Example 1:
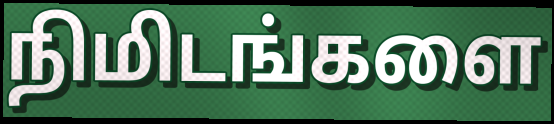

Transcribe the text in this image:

நிமிடங்களை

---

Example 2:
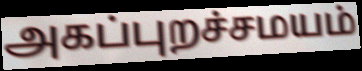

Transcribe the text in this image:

அகப்புறச்சமயம்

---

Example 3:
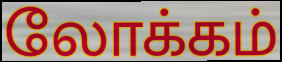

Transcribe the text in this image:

லோக்கம்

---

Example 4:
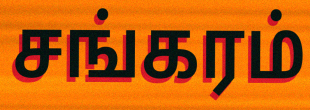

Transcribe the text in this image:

சங்கரம்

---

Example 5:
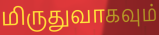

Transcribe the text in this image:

மிருதுவாகவும்